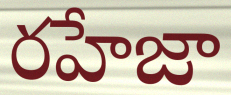
రహేజా